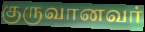
குருவானவர்